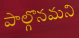
పాల్గొనమని